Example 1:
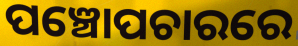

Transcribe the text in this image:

ପଞ୍ଚୋପଚାରରେ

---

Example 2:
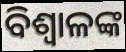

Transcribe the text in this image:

ବିଶ୍ୱାଳଙ୍କ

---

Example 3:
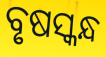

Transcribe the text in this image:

ବୃଷସ୍କନ୍ଧ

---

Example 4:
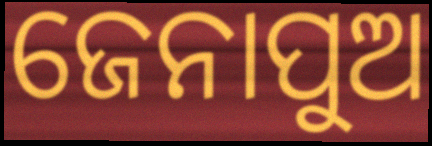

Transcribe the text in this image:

ଜେନାପୁଅ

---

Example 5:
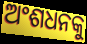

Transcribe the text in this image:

ଅଂଶଧନକୁ